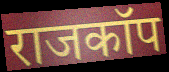
राजकॉप